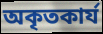
অকৃতকার্য